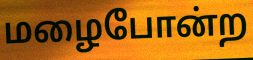
மழைபோன்ற